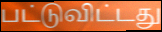
பட்டுவிட்டது